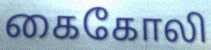
கைகோலி